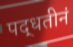
पद्धतीनं